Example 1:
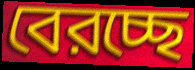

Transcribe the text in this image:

বেরচ্ছে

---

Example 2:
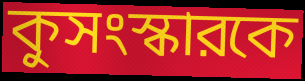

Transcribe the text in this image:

কুসংস্কারকে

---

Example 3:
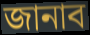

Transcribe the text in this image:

জানাব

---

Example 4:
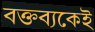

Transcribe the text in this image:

বক্তব্যকেই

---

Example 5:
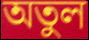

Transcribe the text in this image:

অতুল